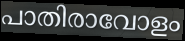
പാതിരാവോളം